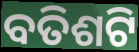
ବତିଶଟି